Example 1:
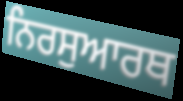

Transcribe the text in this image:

ਨਿਰਸੁਆਰਥ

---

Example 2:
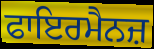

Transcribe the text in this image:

ਫਾਇਰਮੈਨਜ਼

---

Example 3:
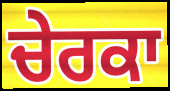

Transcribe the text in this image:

ਚੇਰਕਾ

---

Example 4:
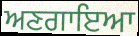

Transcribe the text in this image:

ਅਣਗਾਇਆ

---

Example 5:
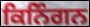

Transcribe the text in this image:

ਕਿਨਿੰਗਨ